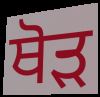
ਥੋੜ